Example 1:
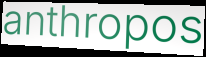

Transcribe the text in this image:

anthropos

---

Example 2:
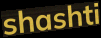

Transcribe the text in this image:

shashti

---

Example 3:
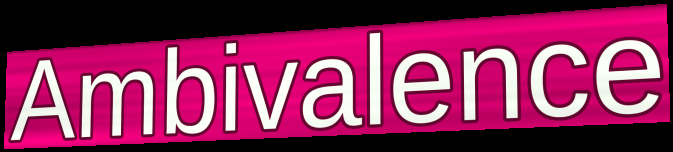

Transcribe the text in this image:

Ambivalence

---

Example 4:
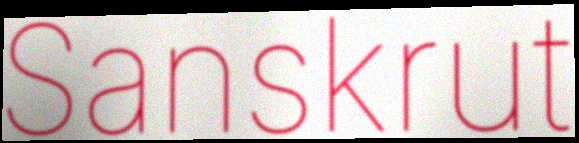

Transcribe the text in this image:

Sanskrut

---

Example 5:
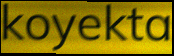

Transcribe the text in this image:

koyekta